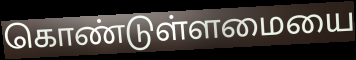
கொண்டுள்ளமையை